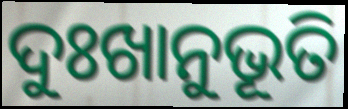
ଦୁଃଖାନୁଭୂତି